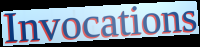
Invocations